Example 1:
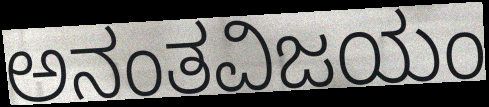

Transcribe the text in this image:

ಅನಂತವಿಜಯಂ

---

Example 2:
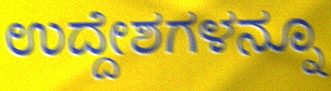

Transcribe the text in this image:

ಉದ್ದೇಶಗಳನ್ನೂ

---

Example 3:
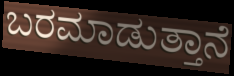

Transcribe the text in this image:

ಬರಮಾಡುತ್ತಾನೆ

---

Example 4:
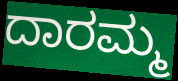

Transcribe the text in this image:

ದಾರಮ್ಮ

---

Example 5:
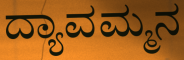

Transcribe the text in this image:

ದ್ಯಾವಮ್ಮನ